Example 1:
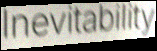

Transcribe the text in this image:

Inevitability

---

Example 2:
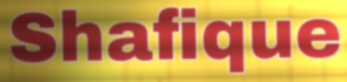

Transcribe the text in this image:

Shafique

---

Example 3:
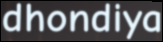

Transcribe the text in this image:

dhondiya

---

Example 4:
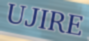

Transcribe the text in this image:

UJIRE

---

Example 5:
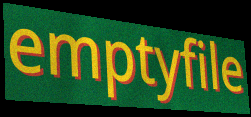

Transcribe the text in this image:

emptyfile